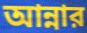
আন্নার